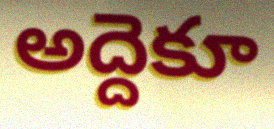
అద్దెకూ